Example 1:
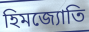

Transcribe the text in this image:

হিমজ্যোতি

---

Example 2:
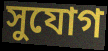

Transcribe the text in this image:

সুযোগ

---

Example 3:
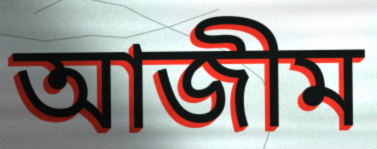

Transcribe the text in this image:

আজীম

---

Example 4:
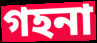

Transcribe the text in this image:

গহনা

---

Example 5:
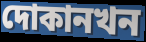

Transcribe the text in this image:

দোকানখন